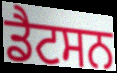
ਡੈਟਸਨ